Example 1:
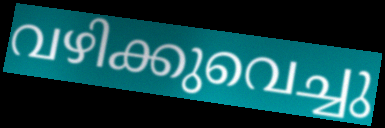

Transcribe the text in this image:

വഴിക്കുവെച്ചു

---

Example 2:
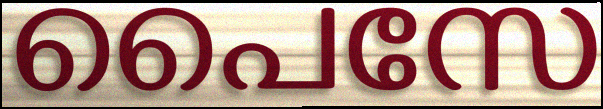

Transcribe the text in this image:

പൈസേ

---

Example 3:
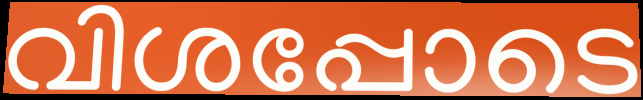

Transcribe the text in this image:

വിശപ്പോടെ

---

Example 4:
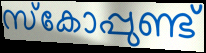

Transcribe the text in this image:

സ്കോപ്പുണ്ട്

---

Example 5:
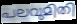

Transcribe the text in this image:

പലവുമിതി